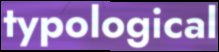
typological